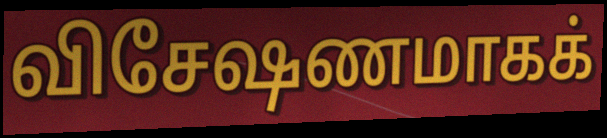
விசேஷணமாகக்